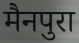
मैनपुरा